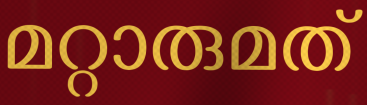
മറ്റാരുമത്